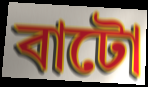
বাটো